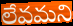
లేవమని